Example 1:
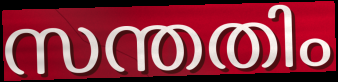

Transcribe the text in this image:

സന്തതിം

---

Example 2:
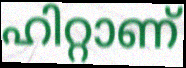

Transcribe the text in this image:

ഹിറ്റാണ്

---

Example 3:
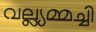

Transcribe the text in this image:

വല്ല്യമ്മച്ചി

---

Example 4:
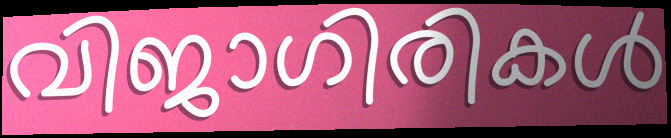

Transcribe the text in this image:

വിജാഗിരികൾ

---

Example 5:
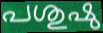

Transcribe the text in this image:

പശുഷു